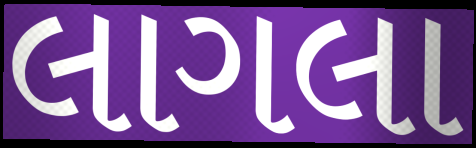
લાગલા